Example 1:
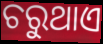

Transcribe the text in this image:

ଚରୁଥାଏ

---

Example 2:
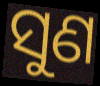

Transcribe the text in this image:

ସୁଣ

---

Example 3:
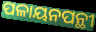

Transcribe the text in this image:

ପଳାୟନପନ୍ଥୀ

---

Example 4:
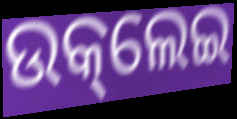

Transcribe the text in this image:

ଉକ୍‌ଲେଇ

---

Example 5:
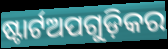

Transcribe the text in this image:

ଷ୍ଟାର୍ଟଅପଗୁଡ଼ିକର